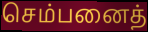
செம்பனைத்